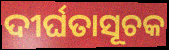
ଦୀର୍ଘତାସୂଚକ